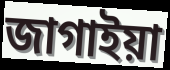
জাগাইয়া